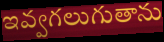
ఇవ్వగలుగుతాను